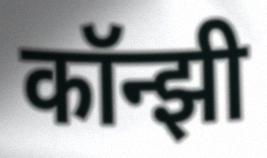
कॉन्झी